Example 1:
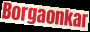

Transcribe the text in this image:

Borgaonkar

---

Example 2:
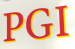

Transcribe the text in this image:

PGI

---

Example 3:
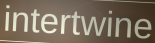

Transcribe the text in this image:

intertwine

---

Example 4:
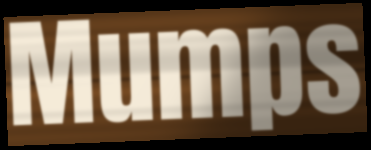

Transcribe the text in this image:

Mumps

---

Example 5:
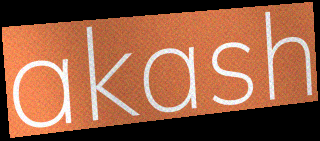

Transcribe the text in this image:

akash